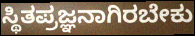
ಸ್ಥಿತಪ್ರಜ್ಞನಾಗಿರಬೇಕು